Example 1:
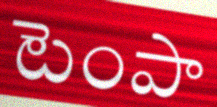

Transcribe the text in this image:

టెంపా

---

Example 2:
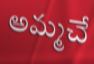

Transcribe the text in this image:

అమ్మచే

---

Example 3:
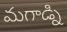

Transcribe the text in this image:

మగాడ్ని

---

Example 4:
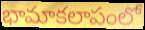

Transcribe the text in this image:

భామాకలాపంలో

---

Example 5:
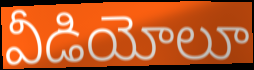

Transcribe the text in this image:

వీడియోలూ